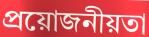
প্ৰয়োজনীয়তা